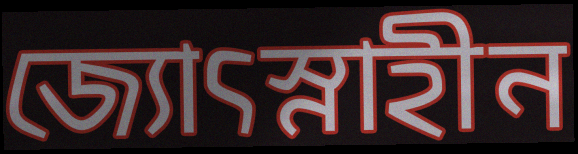
জ্যোৎস্নাহীন